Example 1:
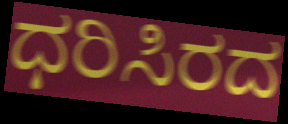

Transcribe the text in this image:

ಧರಿಸಿರದ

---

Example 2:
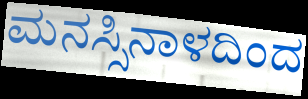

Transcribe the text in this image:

ಮನಸ್ಸಿನಾಳದಿಂದ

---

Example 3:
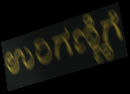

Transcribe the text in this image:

ಉರಿಗಣ್ಣಿಗೆ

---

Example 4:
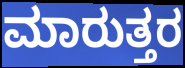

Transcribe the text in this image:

ಮಾರುತ್ತರ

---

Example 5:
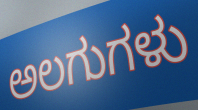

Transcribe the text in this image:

ಅಲಗುಗಳು